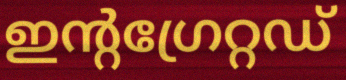
ഇന്റഗ്രേറ്റഡ്